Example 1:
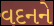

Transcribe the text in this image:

વદનને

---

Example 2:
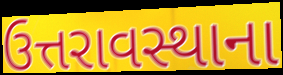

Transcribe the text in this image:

ઉત્તરાવસ્થાના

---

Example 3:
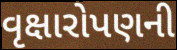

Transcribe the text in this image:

વૃક્ષારોપણની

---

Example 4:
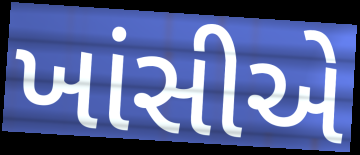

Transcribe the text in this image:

ખાંસીએ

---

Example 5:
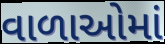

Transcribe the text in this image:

વાળાઓમાં